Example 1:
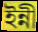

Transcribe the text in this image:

ইন্নী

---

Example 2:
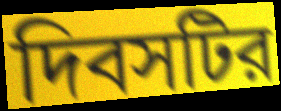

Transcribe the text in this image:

দিবসটির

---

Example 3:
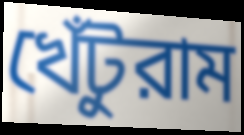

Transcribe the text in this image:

খেঁটুরাম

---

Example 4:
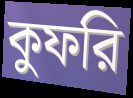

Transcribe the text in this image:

কুফরি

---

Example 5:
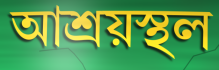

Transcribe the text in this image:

আশ্রয়স্থল